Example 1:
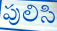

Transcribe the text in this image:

పులిసి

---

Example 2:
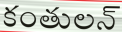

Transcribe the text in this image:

కంతులన్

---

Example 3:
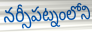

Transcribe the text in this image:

నర్సీపట్నంలోని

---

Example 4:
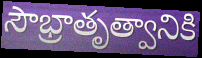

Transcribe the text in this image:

సౌభ్రాతృత్వానికి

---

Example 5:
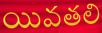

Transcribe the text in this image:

యివతలి